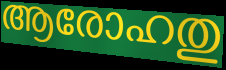
ആരോഹതു